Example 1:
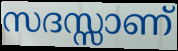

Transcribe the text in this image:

സദസ്സാണ്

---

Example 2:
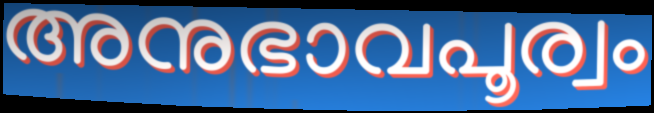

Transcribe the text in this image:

അനുഭാവപൂര്വം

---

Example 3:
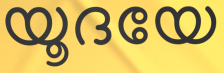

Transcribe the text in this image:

യൂദയേ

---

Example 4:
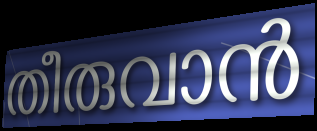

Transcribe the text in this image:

തീരുവാൻ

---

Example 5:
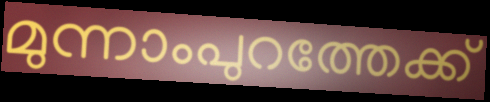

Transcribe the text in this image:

മുന്നാംപുറത്തേക്ക്